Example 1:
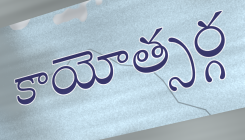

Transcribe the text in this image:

కాయోత్సర్గ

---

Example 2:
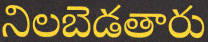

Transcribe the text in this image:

నిలబెడతారు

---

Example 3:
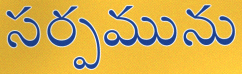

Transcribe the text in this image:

సర్పమును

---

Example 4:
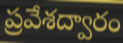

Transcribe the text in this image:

ప్రవేశద్వారం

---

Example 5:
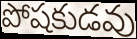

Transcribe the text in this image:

పోషకుడవు